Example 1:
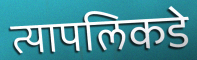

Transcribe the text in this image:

त्यापलिकडे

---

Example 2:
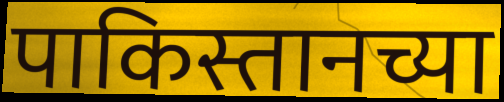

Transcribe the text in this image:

पाकिस्तानच्या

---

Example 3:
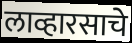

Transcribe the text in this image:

लाव्हारसाचे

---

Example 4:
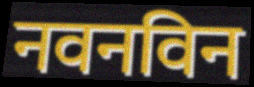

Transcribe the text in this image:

नवनविन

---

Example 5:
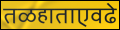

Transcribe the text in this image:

तळहाताएवढे